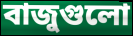
বাজুগুলো